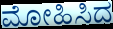
ಮೋಹಿಸಿದ